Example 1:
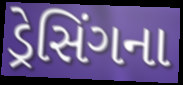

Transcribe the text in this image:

ડ્રેસિંગના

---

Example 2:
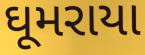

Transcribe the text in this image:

ઘૂમરાયા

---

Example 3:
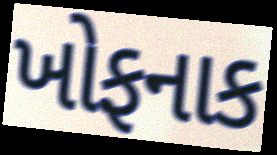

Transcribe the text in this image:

ખોફનાક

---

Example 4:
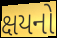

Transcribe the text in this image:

ક્ષયનો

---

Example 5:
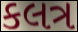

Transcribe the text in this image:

કલત્ર